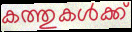
കത്തുകൾക്ക്